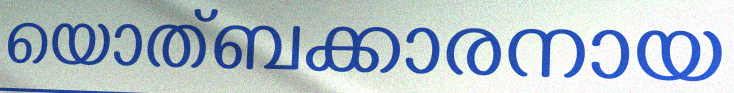
യൊത്ബക്കാരനായ